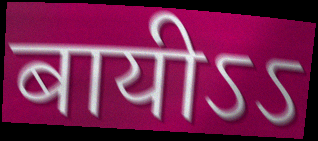
बायीऽऽ